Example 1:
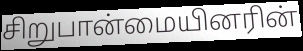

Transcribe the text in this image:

சிறுபான்மையினரின்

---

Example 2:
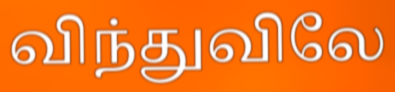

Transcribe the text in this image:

விந்துவிலே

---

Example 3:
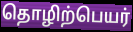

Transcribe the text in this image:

தொழிற்பெயர்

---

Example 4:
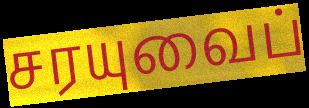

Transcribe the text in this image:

சரயுவைப்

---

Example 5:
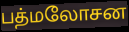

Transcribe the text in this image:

பத்மலோசன